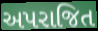
અપરાજિત